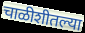
चाळीशीतल्या